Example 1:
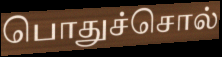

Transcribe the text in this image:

பொதுச்சொல்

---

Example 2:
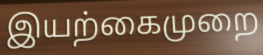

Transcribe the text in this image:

இயற்கைமுறை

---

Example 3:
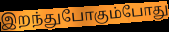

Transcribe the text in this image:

இறந்துபோகும்போது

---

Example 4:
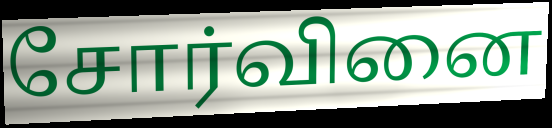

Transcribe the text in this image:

சோர்வினை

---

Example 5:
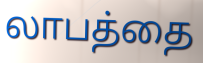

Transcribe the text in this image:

லாபத்தை